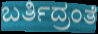
ಬರ್ತಿದ್ರಂತೆ